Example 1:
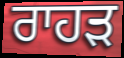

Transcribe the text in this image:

ਰਾਹੜ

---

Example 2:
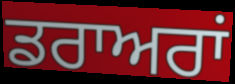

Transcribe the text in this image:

ਡਰਾਅਰਾਂ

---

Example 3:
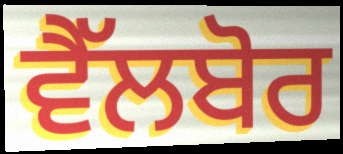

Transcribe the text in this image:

ਵੈੱਲਬੋਰ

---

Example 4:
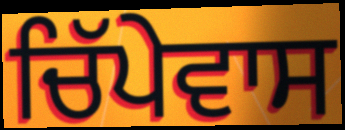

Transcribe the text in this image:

ਚਿੱਪੇਵਾਸ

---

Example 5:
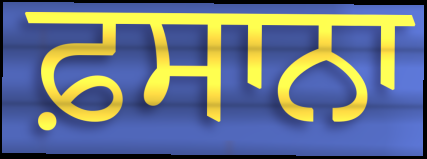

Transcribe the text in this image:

ਫ਼ਸਾਨਾ